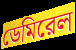
ডেমিরেল